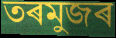
তৰমুজৰ